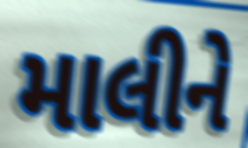
માલીને